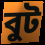
বুট